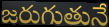
జరుగుతునే